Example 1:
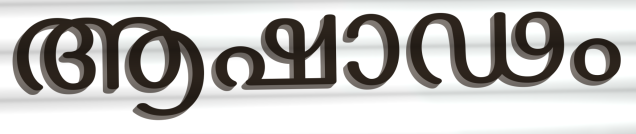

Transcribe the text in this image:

ആഷാഢം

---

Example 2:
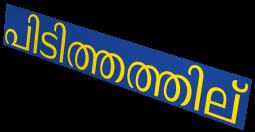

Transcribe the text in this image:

പിടിത്തത്തില്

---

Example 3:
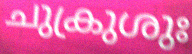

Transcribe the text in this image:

ചുക്രുശുഃ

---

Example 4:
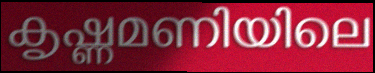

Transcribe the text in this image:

കൃഷ്ണമണിയിലെ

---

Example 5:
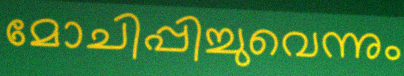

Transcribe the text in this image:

മോചിപ്പിച്ചുവെന്നും